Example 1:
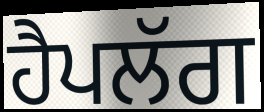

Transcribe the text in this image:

ਹੈਪਲੱਗ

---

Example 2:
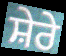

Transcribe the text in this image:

ਸ਼ੇਰੇ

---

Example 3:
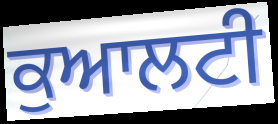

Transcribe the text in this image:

ਕੁਆਲਟੀ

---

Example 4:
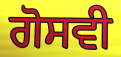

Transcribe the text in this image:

ਗੋਸਵੀ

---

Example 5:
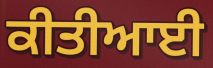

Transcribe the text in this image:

ਕੀਤੀਆਈ